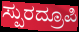
ಸ್ಪುರದ್ರೂಪಿ